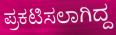
ಪ್ರಕಟಿಸಲಾಗಿದ್ದ